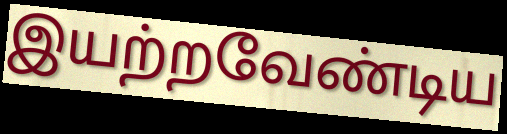
இயற்றவேண்டிய